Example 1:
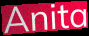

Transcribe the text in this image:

Anita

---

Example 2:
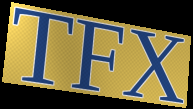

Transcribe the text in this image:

TFX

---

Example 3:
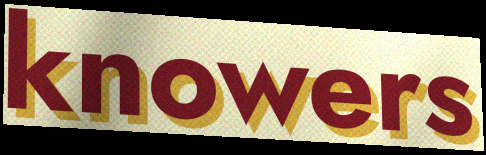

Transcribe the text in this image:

knowers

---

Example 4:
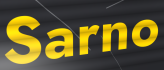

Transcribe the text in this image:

Sarno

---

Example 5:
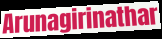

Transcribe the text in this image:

Arunagirinathar